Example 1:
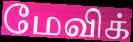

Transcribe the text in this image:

மேவிக்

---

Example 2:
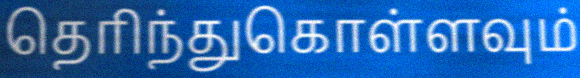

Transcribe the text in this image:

தெரிந்துகொள்ளவும்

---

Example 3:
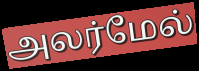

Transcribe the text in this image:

அலர்மேல்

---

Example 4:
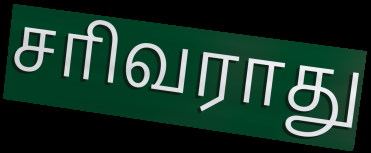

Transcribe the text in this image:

சரிவராது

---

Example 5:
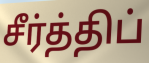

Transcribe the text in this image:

சீர்த்திப்